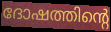
ദോഷത്തിന്റെ